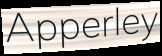
Apperley